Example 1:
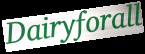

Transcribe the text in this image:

Dairyforall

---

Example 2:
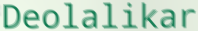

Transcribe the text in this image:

Deolalikar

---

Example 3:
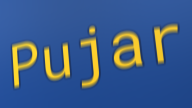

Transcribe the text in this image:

Pujar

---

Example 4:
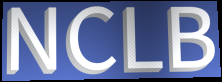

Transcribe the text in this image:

NCLB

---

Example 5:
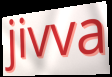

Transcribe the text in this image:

jivva